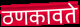
ठणकावते